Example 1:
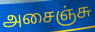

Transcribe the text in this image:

அசைஞ்சு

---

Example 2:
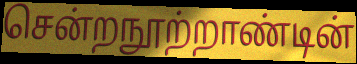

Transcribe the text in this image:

சென்றநூற்றாண்டின்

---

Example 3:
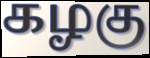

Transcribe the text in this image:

கழகு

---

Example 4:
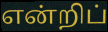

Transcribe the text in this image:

என்றிப்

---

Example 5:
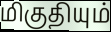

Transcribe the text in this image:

மிகுதியும்